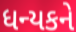
ધન્યકને